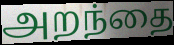
அறந்தை